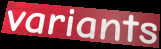
variants